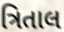
ત્રિતાલ